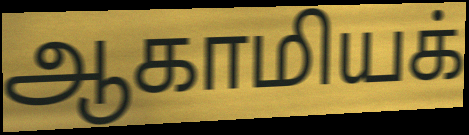
ஆகாமியக்